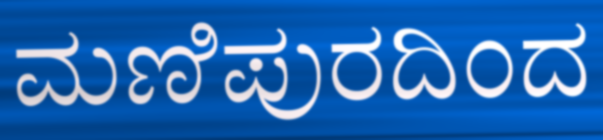
ಮಣಿಪುರದಿಂದ